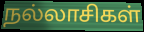
நல்லாசிகள்